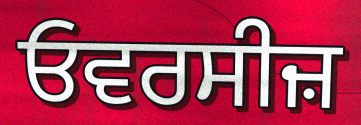
ਓਵਰਸੀਜ਼